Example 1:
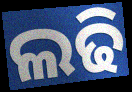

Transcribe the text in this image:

ଲଢି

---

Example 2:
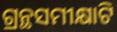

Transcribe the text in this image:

ଗ୍ରନ୍ଥସମୀକ୍ଷାଟି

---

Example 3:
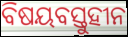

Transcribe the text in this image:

ବିଷୟବସ୍ତୁହୀନ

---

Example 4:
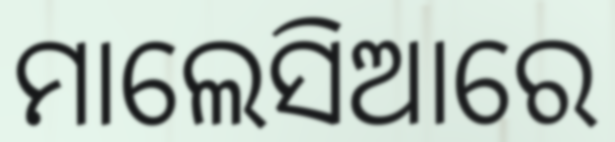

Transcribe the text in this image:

ମାଲେସିଆରେ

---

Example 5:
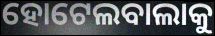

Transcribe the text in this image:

ହୋଟେଲବାଲାକୁ